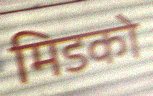
मिडको